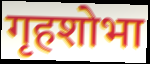
गृहशोभा